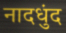
नादधुंद